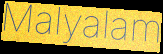
Malyalam